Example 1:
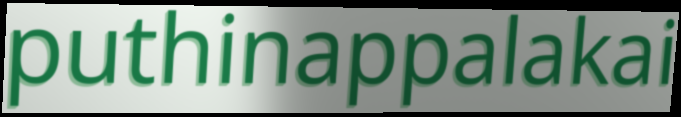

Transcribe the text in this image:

puthinappalakai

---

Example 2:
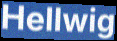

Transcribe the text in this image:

Hellwig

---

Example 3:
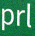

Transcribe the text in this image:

prl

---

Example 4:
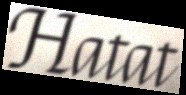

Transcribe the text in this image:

Hatat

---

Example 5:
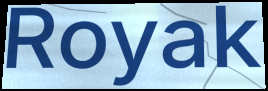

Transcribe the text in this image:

Royak